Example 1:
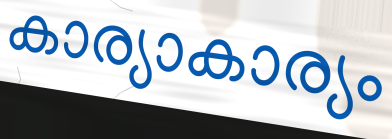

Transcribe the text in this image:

കാര്യാകാര്യം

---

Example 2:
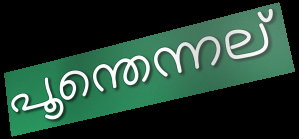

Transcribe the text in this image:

പൂന്തെന്നല്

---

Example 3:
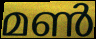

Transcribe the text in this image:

മൺ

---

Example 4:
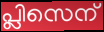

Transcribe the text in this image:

പ്ലിസെന്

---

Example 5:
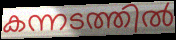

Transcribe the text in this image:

കന്നടത്തിൽ